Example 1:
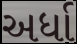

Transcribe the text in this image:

અર્ધા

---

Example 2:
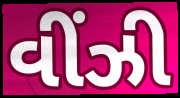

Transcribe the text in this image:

વીંઝી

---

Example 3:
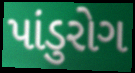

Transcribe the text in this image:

પાંડુરોગ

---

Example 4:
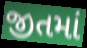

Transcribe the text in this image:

જીતમાં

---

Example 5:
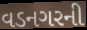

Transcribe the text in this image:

વડનગરની